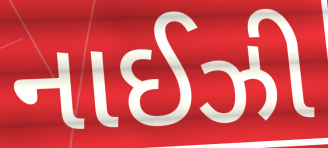
નાઈઝી